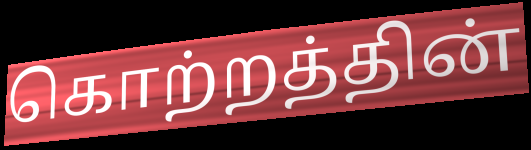
கொற்றத்தின்